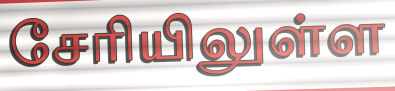
சேரியிலுள்ள